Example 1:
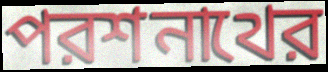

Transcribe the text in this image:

পরশনাথের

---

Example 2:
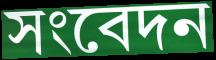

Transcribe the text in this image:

সংবেদন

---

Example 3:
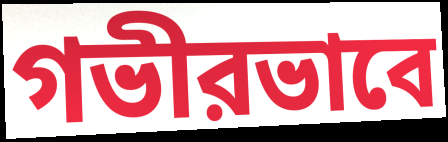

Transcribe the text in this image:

গভীরভাবে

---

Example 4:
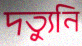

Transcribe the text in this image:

দত্যুনি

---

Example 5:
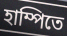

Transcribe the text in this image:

হাম্পিতে